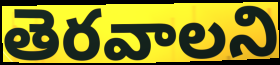
తెరవాలని